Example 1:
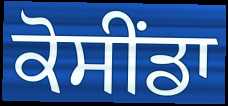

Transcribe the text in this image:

ਕੋਸੀਂਡਾ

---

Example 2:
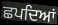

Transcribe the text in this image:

ਛਪਦਿਆਂ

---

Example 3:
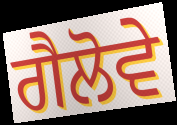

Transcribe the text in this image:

ਗੈਲੋਵੇ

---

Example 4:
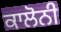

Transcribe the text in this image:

ਕਾਲੋਨੀ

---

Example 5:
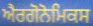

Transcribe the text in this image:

ਐਰਗੋਨੋਮਿਕਸ